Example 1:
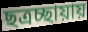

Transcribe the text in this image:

ছত্রচ্ছায়ায়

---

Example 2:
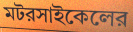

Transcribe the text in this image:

মটরসাইকেলের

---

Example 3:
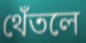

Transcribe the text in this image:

থেঁতলে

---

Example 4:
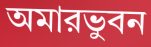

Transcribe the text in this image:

অমারভুবন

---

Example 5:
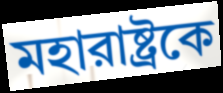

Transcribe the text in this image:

মহারাষ্ট্রকে